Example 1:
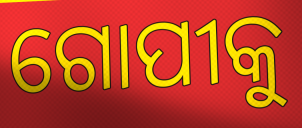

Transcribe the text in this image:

ଗୋପୀକୁ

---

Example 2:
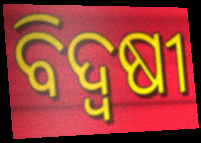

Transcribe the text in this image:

ବିଦ୍ୱଷୀ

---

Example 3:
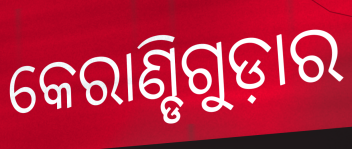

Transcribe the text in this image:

କେରାଣ୍ଡିଗୁଡ଼ାର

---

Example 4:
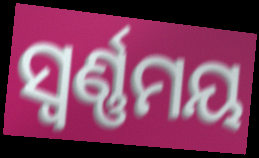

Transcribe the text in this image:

ସ୍ଵର୍ଣ୍ଣମୟ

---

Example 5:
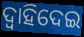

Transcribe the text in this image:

ଦ୍ୱାହିଦେଇ